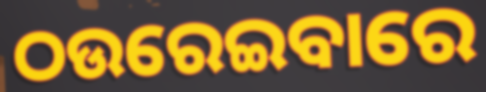
ଠଉରେଇବାରେ